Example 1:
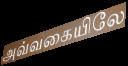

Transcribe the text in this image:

அவ்வகையிலே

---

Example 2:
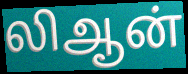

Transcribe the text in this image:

லிஆன்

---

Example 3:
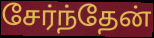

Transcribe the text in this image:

சேர்ந்தேன்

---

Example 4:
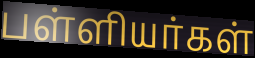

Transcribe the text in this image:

பள்ளியர்கள்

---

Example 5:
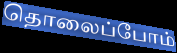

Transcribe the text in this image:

தொலைப்போம்